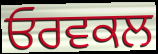
ਓਰਵਕਲ